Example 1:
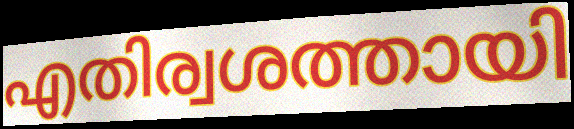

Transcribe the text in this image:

എതിര്വശത്തായി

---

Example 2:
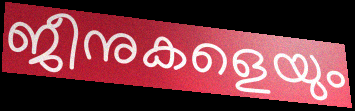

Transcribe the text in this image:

ജീനുകളെയും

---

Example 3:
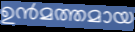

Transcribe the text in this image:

ഉൻമത്തമായ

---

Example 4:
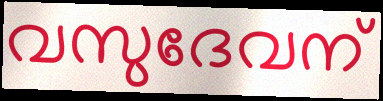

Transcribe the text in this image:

വസുദേവന്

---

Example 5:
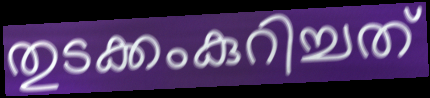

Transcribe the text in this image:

തുടക്കംകുറിച്ചത്